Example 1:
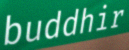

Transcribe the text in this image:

buddhir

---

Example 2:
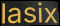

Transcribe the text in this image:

lasix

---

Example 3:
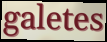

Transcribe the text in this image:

galetes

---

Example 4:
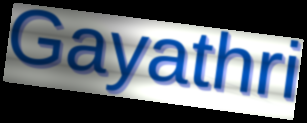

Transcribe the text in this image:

Gayathri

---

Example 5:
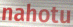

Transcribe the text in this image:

nahotu